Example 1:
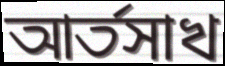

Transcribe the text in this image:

আর্তসাখ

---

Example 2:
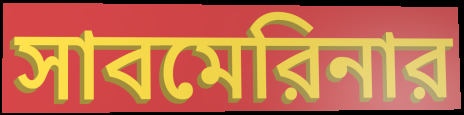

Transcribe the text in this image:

সাবমেরিনার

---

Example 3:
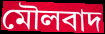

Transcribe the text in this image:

মৌলবাদ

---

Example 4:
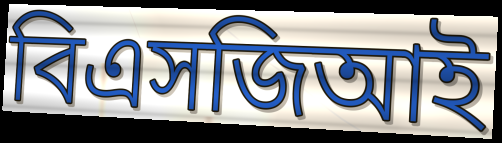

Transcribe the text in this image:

বিএসজিআই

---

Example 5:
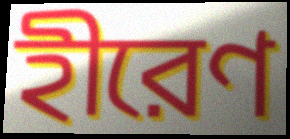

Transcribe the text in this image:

হীরেণ